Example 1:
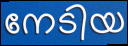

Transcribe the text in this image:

നേടിയ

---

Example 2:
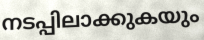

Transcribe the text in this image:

നടപ്പിലാക്കുകയും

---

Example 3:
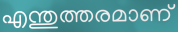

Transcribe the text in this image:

എന്തുത്തരമാണ്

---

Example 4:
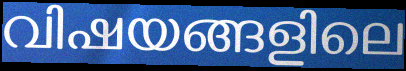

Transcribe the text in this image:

വിഷയങ്ങളിലെ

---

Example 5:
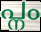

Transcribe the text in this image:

പ്നം